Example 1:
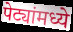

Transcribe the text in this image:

पेट्यांमध्ये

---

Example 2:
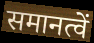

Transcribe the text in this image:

समानत्वें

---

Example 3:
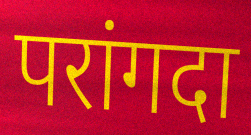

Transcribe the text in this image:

परांगदा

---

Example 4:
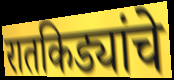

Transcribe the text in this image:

रातकिड्यांचे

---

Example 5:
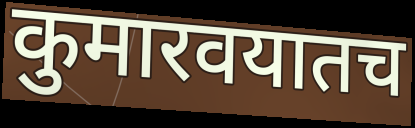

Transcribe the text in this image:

कुमारवयातच